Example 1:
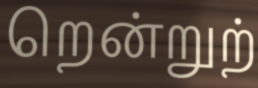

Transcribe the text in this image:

றென்றுற்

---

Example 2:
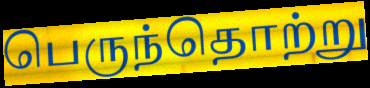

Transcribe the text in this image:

பெருந்தொற்று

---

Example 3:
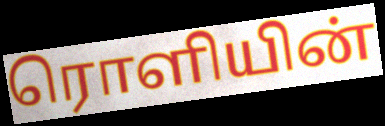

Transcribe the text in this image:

ரொளியின்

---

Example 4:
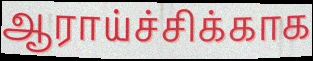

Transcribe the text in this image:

ஆராய்ச்சிக்காக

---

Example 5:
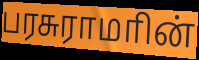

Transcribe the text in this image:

பரசுராமரின்